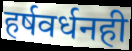
हर्षवर्धनही